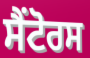
ਸੈਂਟੋਰਸ